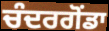
ਚੰਦਰਗੋਂਡਾ